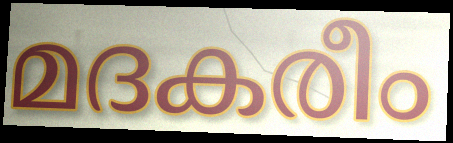
മദകരീം